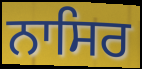
ਨਾਸਿਰ